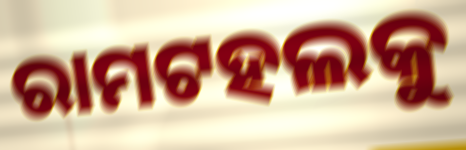
ରାମଟହଲକୁ